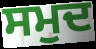
ਸਮੁਦ